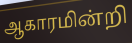
ஆகாரமின்றி